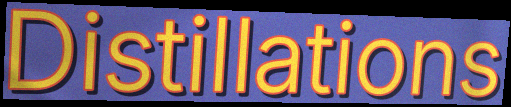
Distillations